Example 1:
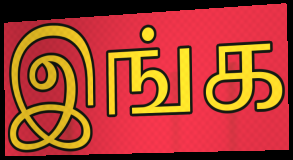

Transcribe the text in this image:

இங்க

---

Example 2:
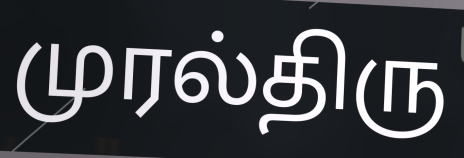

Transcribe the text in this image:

முரல்திரு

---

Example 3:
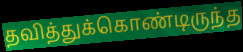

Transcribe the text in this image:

தவித்துக்கொண்டிருந்த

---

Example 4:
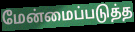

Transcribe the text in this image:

மேன்மைப்படுத்த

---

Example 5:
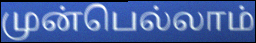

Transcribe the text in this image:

முன்பெல்லாம்